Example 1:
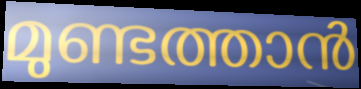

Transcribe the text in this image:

മുണ്ടത്താൻ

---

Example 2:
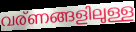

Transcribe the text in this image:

വര്ണങ്ങളിലുള്ള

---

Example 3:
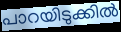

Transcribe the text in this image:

പാറയിടുക്കിൽ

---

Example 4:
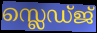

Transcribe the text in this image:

സ്ലെഡ്ജ്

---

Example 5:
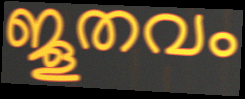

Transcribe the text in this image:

ജൂതവം